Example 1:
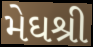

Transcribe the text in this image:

મેઘશ્રી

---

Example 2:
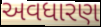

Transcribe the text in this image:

અવધારણ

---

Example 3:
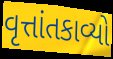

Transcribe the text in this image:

વૃત્તાંતકાવ્યો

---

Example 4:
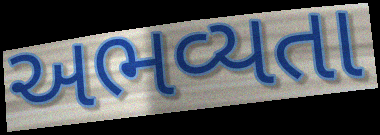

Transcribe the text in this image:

અભવ્યતા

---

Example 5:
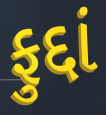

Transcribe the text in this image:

ફુદ્દાં